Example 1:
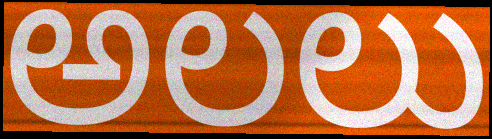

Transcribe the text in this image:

అలలు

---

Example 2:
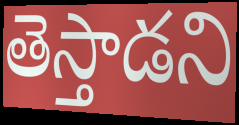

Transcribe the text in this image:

తెస్తాడని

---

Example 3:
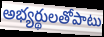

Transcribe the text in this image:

అభ్యర్థులతోపాటు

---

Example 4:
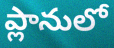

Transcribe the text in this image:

ప్లానులో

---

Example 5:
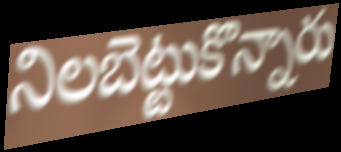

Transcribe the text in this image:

నిలబెట్టుకొన్నారు